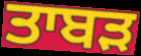
ਤਾਬੜ